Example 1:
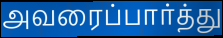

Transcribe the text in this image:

அவரைப்பார்த்து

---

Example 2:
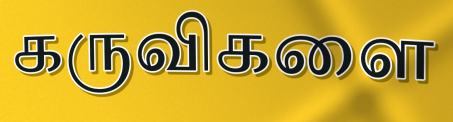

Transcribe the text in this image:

கருவிகளை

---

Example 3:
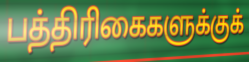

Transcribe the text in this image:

பத்திரிகைகளுக்குக்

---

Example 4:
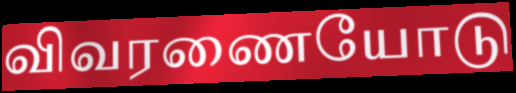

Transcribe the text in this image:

விவரணையோடு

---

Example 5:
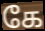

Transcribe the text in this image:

கே